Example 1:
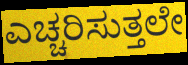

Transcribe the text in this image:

ಎಚ್ಚರಿಸುತ್ತಲೇ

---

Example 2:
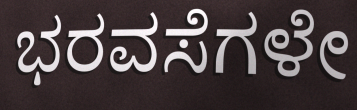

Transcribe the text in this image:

ಭರವಸೆಗಳೇ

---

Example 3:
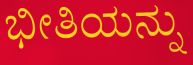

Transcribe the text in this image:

ಭೀತಿಯನ್ನು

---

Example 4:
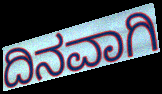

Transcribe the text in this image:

ದಿನವಾಗಿ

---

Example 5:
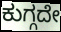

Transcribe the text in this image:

ಕುಗ್ಗದೇ